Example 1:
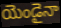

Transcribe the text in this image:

యెండైనా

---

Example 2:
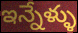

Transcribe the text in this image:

ఇన్నేళ్ళు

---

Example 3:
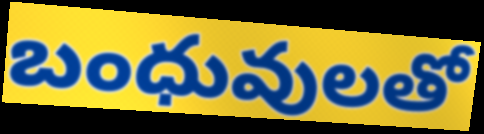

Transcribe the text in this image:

బంధువులతో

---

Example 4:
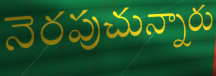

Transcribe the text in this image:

నెరపుచున్నారు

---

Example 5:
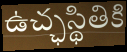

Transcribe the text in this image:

ఉచ్ఛస్థితికి